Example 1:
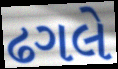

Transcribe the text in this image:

ઢગલે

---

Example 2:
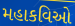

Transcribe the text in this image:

મહાકવિઓ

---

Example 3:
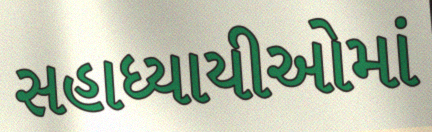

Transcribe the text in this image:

સહાધ્યાયીઓમાં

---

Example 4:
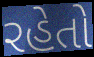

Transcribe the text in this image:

રહેતો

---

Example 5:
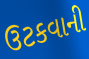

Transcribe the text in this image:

ઉટકવાની